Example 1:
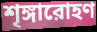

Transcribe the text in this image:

শৃঙ্গারোহণ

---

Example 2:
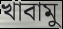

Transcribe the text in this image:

খাবামু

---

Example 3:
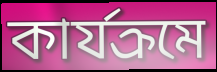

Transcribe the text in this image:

কার্যক্রমে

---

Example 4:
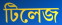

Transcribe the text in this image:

টিলেজ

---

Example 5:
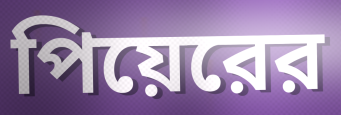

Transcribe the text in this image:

পিয়েরের